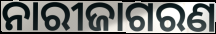
ନାରୀଜାଗରଣ